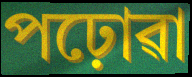
পঢ়োৱা